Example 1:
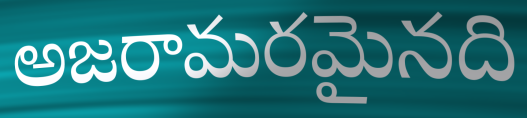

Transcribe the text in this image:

అజరామరమైనది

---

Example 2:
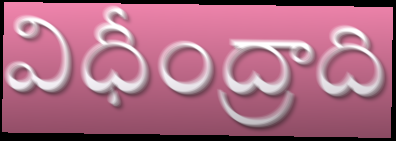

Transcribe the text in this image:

విధీంద్రాది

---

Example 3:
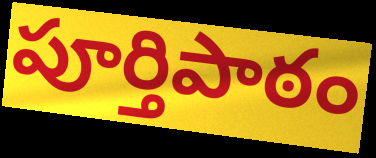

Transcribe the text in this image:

పూర్తిపాఠం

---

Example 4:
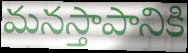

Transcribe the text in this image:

మనస్తాపానికి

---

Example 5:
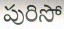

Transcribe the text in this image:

పురిసో